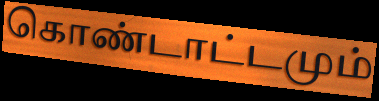
கொண்டாட்டமும்